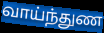
வாய்ந்துண